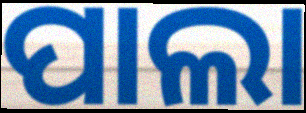
ପାଲା